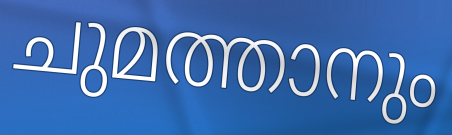
ചുമത്താനും